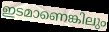
ഇടമാണെങ്കിലും